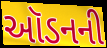
ઑડનની